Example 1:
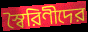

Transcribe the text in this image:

স্বৈরিণীদের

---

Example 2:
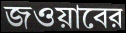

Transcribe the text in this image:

জওয়াবের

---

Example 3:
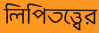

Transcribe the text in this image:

লিপিতত্ত্বের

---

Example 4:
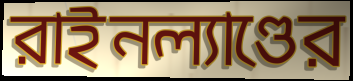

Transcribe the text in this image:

রাইনল্যাণ্ডের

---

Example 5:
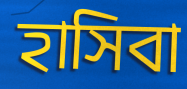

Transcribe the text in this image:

হাসিবা